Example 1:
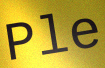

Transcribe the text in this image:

Ple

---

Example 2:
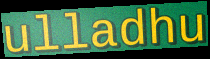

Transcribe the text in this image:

ulladhu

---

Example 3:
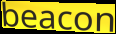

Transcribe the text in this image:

beacon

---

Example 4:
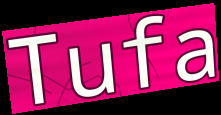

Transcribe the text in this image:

Tufa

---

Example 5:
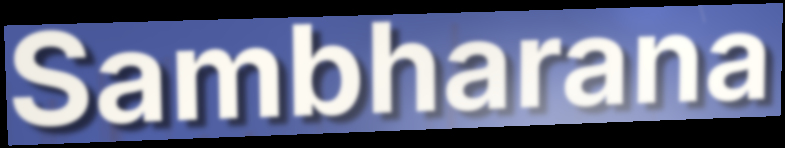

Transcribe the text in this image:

Sambharana